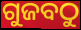
ଗୁଜବଠୁ